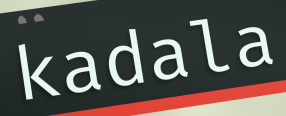
kadala